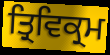
ਤ੍ਰਿਵਿਕ੍ਰਮ